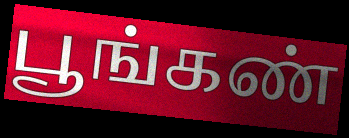
பூங்கண்